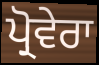
ਪ੍ਰੋਵੇਰਾ